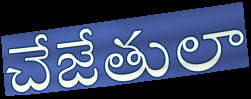
చేజేతులా